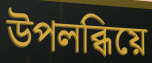
উপলব্ধিয়ে